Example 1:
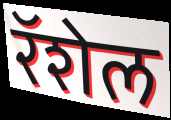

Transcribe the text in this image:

रॅशेल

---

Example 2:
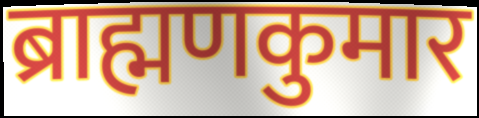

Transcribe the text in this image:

ब्राह्मणकुमार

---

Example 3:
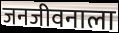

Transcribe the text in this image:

जनजीवनाला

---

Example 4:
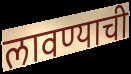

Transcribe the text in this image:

लावण्याची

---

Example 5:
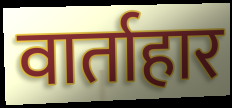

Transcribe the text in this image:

वार्ताहार